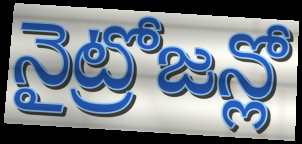
నైట్రోజన్లో